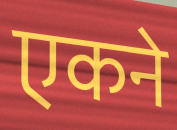
एकने